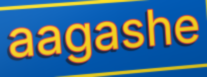
aagashe